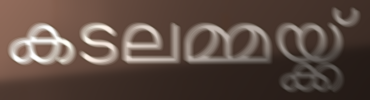
കടലമ്മയ്ക്ക്